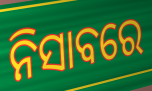
ନିସାବରେ